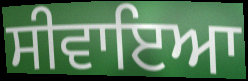
ਸੀਵਾਇਆ